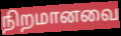
நிறமானவை